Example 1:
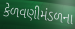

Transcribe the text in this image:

કેળવણીમંડળના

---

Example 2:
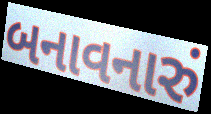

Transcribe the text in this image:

બનાવનારું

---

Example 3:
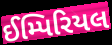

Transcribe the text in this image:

ઈમ્પિરિયલ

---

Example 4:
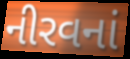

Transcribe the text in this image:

નીરવનાં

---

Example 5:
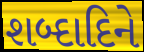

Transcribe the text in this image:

શબ્દાદિને